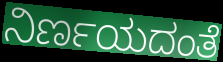
ನಿರ್ಣಯದಂತೆ